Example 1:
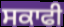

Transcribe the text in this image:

ਸਕਾਫੀ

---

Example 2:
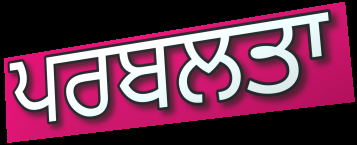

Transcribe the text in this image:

ਪਰਬਲਤਾ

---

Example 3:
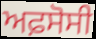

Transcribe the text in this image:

ਅਫ਼ਸੋਸੀ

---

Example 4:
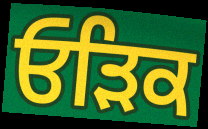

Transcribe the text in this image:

ਓੜਿਕ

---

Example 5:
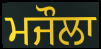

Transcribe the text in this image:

ਮਜੌਲਾ